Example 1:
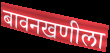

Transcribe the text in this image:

बावनखणीला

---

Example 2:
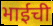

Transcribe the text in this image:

भाईची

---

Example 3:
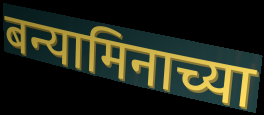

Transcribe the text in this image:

बन्यामिनाच्या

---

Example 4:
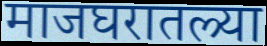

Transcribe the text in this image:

माजघरातल्या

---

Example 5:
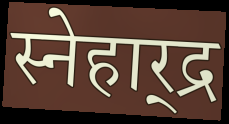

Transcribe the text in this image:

स्नेहार्द्र